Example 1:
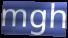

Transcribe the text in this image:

mgh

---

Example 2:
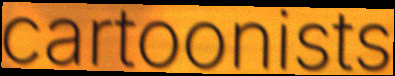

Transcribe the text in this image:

cartoonists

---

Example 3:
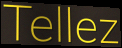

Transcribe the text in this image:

Tellez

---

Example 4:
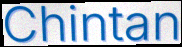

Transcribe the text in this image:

Chintan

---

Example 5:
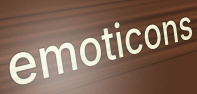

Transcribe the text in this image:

emoticons